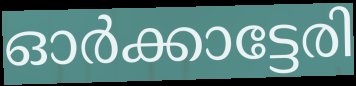
ഓർക്കാട്ടേരി